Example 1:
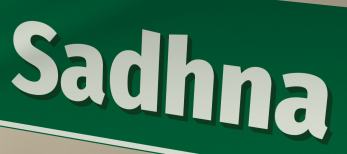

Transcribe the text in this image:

Sadhna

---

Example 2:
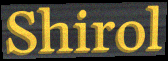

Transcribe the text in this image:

Shirol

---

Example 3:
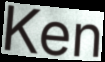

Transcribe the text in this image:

Ken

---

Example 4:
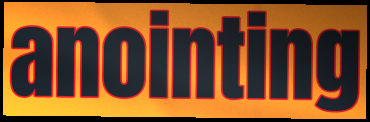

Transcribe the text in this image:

anointing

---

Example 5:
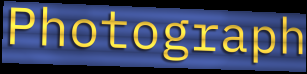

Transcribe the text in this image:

Photograph